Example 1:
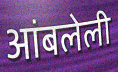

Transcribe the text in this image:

आंबलेली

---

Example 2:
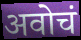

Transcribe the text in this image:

अवोचं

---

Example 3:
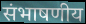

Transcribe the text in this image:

संभाषणीय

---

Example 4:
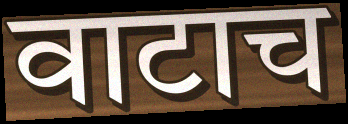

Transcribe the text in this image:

वाटाच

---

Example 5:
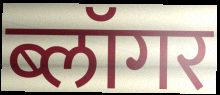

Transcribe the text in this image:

ब्लॉगर